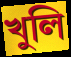
খুলি